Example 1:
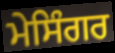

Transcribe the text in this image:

ਮੇਸਿੰਗਰ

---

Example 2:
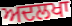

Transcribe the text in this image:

ਅਦਲਖਾ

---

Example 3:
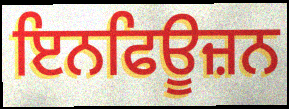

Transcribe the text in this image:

ਇਨਫਿਊਜ਼ਨ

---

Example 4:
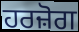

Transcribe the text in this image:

ਹਰਜ਼ੋਗ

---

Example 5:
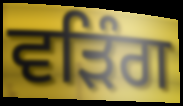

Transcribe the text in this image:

ਵੜਿੰਗ